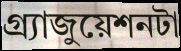
গ্র্যাজুয়েশনটা